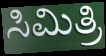
ಸಿಮಿತ್ರಿ